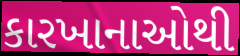
કારખાનાઓથી